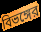
বিভঙ্গের